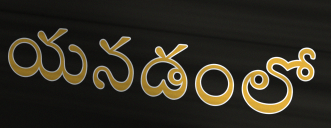
యనడంలో